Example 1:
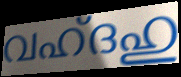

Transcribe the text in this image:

വഹ്ദഹു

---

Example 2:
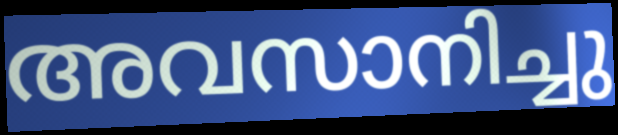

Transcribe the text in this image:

അവസാനിച്ചു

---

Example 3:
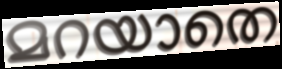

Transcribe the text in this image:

മറയാതെ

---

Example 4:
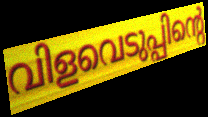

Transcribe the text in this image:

വിളവെടുപ്പിന്റെ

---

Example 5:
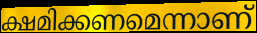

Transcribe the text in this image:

ക്ഷമിക്കണമെന്നാണ്